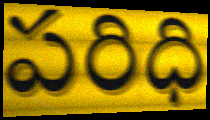
పరిధి